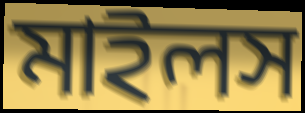
মাইলস